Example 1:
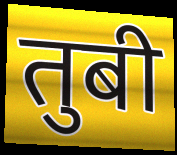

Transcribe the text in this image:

तुबी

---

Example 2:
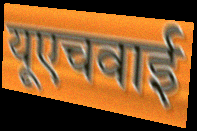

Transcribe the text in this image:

यूएचवाई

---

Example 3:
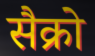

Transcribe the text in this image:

सैक्रो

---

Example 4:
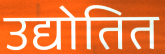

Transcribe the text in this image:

उद्योतित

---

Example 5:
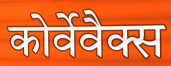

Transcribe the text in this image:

कोर्वेवैक्स